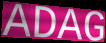
ADAG